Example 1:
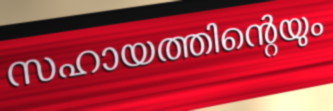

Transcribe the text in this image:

സഹായത്തിന്റെയും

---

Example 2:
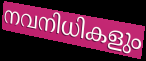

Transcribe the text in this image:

നവനിധികളും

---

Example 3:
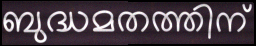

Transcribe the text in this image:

ബുദ്ധമതത്തിന്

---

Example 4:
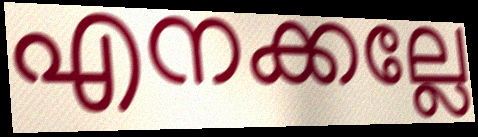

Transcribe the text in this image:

എനക്കല്ലേ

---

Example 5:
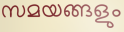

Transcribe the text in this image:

സമയങ്ങളും